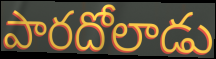
పారదోలాడు